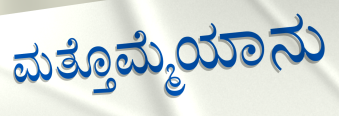
ಮತ್ತೊಮ್ಮೆಯಾನು